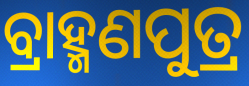
ବ୍ରାହ୍ମଣପୁତ୍ର